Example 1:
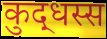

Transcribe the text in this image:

कुद्धस्स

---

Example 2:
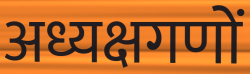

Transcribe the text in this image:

अध्यक्षगणों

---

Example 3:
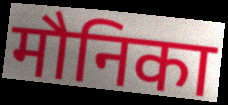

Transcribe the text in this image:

मौनिका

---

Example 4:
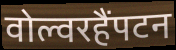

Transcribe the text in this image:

वोल्वरहैंपटन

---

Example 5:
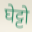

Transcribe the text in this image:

घेट्टो